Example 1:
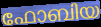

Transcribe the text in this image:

ഫോബിയ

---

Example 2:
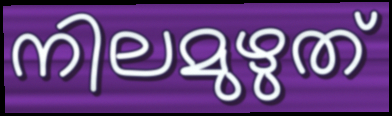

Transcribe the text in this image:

നിലമുഴുത്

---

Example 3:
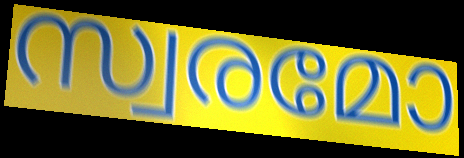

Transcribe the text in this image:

സ്വരമോ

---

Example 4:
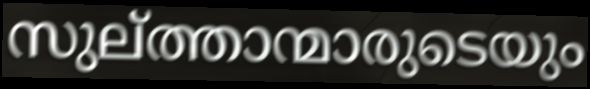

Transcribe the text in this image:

സുല്ത്താന്മാരുടെയും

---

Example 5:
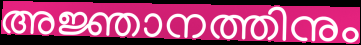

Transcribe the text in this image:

അജ്ഞാനത്തിനും